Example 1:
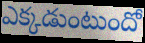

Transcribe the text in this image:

ఎక్కడుంటుందో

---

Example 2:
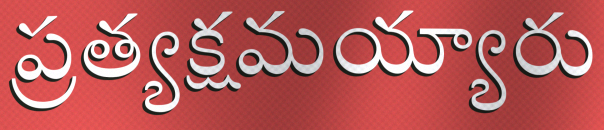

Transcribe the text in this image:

ప్రత్యక్షమయ్యారు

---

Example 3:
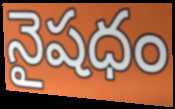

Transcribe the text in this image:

నైషధం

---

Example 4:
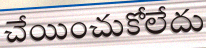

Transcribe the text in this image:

చేయించుకోలేదు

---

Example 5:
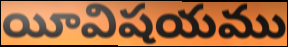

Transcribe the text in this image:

యీవిషయము